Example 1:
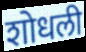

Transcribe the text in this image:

शोधली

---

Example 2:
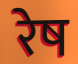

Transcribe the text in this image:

रेष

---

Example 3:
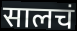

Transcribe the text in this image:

सालचं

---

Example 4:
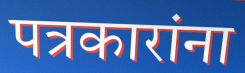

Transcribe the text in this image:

पत्रकारांना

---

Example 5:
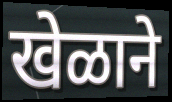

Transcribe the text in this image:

खेळाने